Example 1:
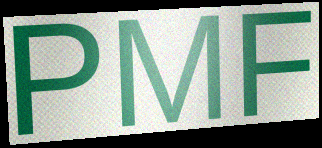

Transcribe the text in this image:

PMF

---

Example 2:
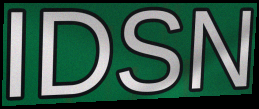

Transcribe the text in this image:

IDSN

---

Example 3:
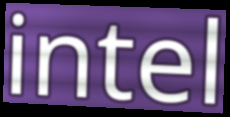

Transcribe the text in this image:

intel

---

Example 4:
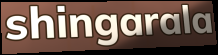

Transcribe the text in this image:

shingarala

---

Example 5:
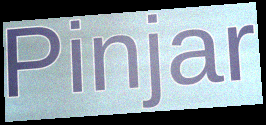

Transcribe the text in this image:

Pinjar